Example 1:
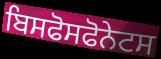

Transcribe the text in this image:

ਬਿਸਫੋਸਫੋਨੇਟਸ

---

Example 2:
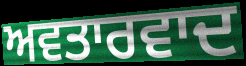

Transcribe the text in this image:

ਅਵਤਾਰਵਾਦ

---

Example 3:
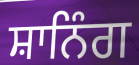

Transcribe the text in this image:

ਸ਼ਾਨਿੰਗ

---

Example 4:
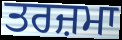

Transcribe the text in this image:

ਤਰਜ਼ਮਾ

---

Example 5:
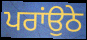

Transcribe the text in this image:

ਪਰਾਂਉਠੇ